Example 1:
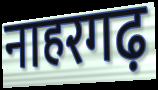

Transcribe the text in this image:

नाहरगढ़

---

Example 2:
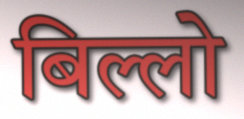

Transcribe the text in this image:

बिल्लो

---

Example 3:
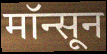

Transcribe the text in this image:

मॉन्सून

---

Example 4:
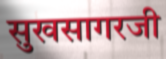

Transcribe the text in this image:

सुखसागरजी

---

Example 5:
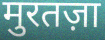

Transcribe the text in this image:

मुरतज़ा